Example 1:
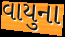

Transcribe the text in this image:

વાયુના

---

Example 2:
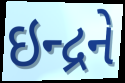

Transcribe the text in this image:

ઇન્દ્રને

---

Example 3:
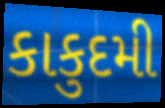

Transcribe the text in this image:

કાકુદમી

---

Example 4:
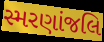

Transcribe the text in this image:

સ્મરણાંજલિ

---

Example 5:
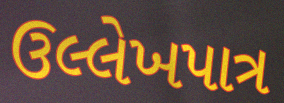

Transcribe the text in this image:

ઉલ્લેખપાત્ર